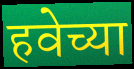
हवेच्या